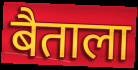
बैताला